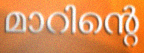
മാറിന്റെ